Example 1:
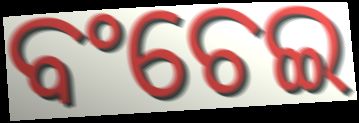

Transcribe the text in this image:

ବଂଚେଇ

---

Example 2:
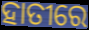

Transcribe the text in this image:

ହାତୀରେ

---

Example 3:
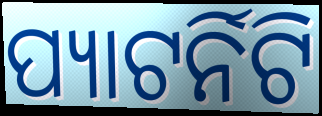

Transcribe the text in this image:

ପ୍ୟାଟର୍ନିଟି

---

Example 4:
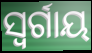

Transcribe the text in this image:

ସ୍ବର୍ଗାୟ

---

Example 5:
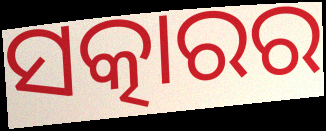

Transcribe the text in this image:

ସତ୍କାରର